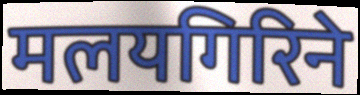
मलयगिरिने